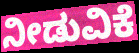
ನೀಡುವಿಕೆ